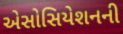
એસોસિયેશનની